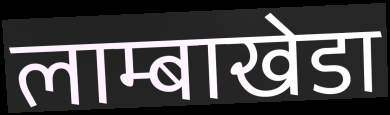
लाम्बाखेडा